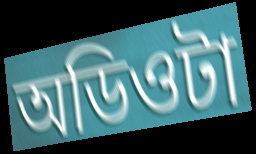
অডিওটা